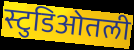
स्टुडिओतली